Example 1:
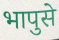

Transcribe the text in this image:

भापुसे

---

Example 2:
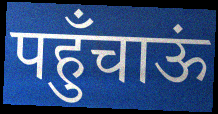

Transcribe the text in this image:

पहुँचाऊं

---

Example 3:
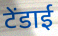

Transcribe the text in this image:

टेंडाई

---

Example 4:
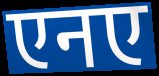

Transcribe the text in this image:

एनए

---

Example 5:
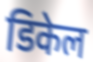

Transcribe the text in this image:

डिकेल